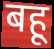
बहू